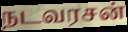
நடவரசன்